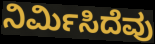
ನಿರ್ಮಿಸಿದೆವು